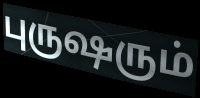
புருஷரும்